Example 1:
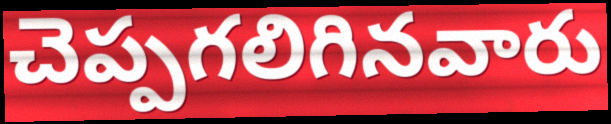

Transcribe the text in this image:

చెప్పగలిగినవారు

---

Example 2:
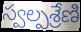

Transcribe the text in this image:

స్వల్పశ్రేణి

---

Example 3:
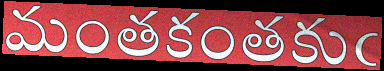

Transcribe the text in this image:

మంతకంతకుఁ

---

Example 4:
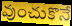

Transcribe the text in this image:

వుంచుకొనే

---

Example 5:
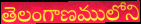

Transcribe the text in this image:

తెలంగాణములోని